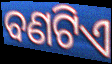
ବଣଟିଏ